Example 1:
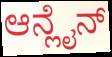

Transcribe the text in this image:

ಆನ್ಲೈನ್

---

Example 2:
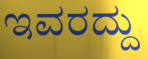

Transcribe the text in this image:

ಇವರದ್ದು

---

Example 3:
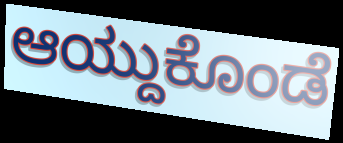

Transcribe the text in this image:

ಆಯ್ದುಕೊಂಡೆ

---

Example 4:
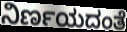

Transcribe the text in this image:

ನಿರ್ಣಯದಂತೆ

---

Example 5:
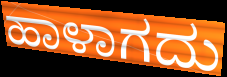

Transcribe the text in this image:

ಹಾಳಾಗದು